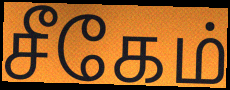
சீகேம்